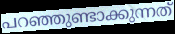
പറഞ്ഞുണ്ടാക്കുന്നത്